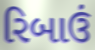
રિબાઉં